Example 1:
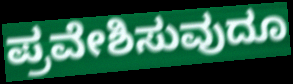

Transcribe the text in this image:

ಪ್ರವೇಶಿಸುವುದೂ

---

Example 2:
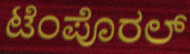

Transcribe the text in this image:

ಟೆಂಪೊರಲ್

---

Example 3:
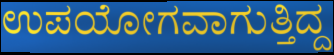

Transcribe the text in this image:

ಉಪಯೋಗವಾಗುತ್ತಿದ್ದ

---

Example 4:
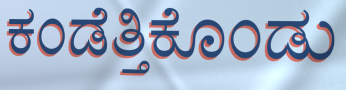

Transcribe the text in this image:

ಕಂಡೆತ್ತಿಕೊಂಡು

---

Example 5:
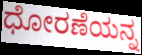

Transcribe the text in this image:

ಧೋರಣೆಯನ್ನ